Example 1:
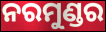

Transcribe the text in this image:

ନରମୁଣ୍ଡର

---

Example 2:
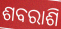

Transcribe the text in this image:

ଶବରାଶି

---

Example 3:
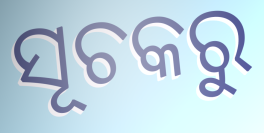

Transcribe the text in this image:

ସୂଚକରୁ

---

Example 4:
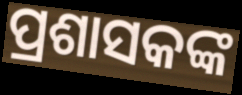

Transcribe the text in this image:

ପ୍ରଶାସକଙ୍କ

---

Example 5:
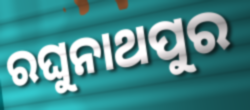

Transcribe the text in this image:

ରଘୁନାଥପୁର